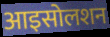
आइसोलशन